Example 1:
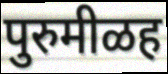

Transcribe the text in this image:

पुरुमीळह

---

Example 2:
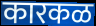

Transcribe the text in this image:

कारकळ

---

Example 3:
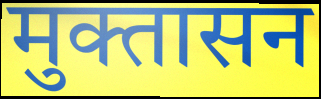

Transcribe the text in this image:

मुक्तासन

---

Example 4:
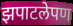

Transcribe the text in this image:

झपाटलेपण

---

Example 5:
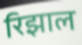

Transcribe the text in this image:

रिझाल